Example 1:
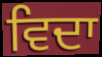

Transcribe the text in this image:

ਵਿਦਾ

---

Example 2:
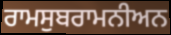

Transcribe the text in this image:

ਰਾਮਸੁਬਰਾਮਨੀਅਨ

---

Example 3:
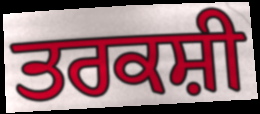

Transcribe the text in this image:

ਤਰਕਸ਼ੀ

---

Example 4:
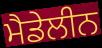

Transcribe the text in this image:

ਮੈਡੇਲੀਨ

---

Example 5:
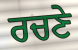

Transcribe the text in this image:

ਰਚਣੇ